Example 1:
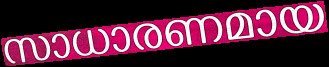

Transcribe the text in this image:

സാധാരണമായ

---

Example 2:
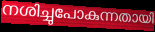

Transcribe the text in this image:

നശിച്ചുപോകുന്നതായി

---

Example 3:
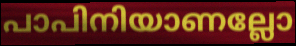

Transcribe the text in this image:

പാപിനിയാണല്ലോ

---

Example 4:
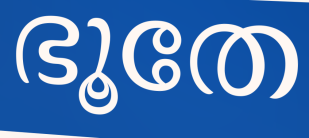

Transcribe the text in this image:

ഭൂതേ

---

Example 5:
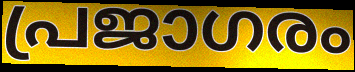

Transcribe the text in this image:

പ്രജാഗരം